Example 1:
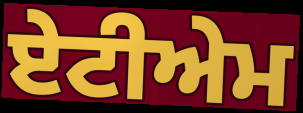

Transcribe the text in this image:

ਏਟੀਅੇਮ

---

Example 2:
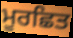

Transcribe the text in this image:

ਮੂਰਛਿਤ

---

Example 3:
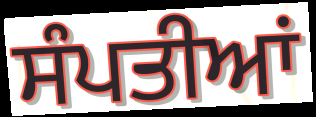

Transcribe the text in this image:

ਸੰਪਤੀਆਂ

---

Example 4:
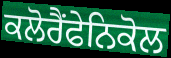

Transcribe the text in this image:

ਕਲੋਰੈਂਫੇਨਿਕੋਲ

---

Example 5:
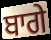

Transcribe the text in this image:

ਬਾਗੇ